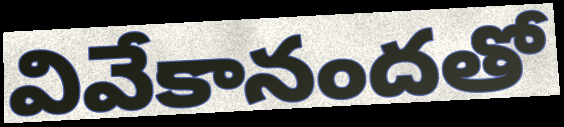
వివేకానందతో